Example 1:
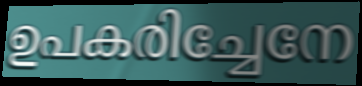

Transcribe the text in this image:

ഉപകരിച്ചേനേ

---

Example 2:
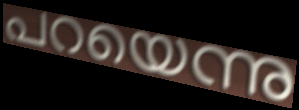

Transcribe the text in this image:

പറയെന്നു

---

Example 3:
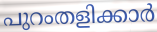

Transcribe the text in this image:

പുറംതളിക്കാർ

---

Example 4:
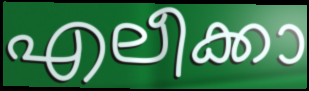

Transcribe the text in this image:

എലീക്കാ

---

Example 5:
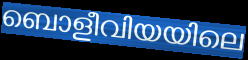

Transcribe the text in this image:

ബൊളീവിയയിലെ